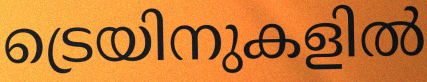
ട്രെയിനുകളിൽ